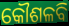
କୌଶଳବି